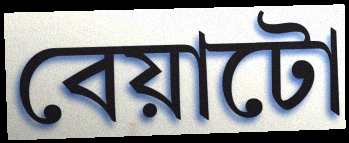
বেয়াটো